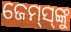
ଜେମ୍‌ସ୍‌ଙ୍କୁ